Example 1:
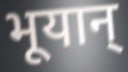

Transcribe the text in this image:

भूयान्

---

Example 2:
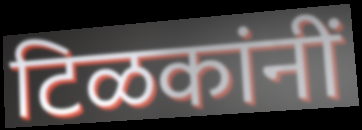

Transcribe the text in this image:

टिळकांनीं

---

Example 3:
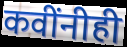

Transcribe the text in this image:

कवींनीही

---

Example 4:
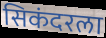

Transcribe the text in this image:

सिकंदरला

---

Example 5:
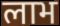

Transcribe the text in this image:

लाभ